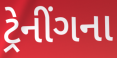
ટ્રેનીંગના